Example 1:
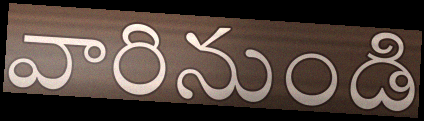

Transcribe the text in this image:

వారినుండి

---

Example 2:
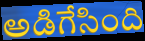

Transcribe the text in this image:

అడిగేసింది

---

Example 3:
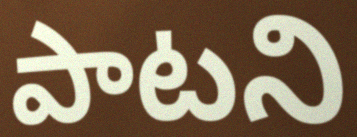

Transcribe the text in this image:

పాటని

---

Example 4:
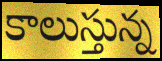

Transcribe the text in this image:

కాలుస్తున్న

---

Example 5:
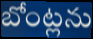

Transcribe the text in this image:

బోంట్లను